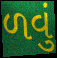
ળવું